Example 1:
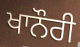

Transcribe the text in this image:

ਖਾਨੌਰੀ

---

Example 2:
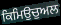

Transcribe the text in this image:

ਕਿਮਿਉਚੁਅਲ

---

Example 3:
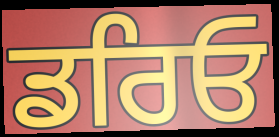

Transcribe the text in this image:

ਡਰਿਓ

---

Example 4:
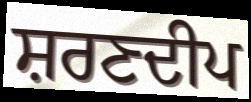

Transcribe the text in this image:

ਸ਼ਰਣਦੀਪ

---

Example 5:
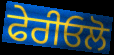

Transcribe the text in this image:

ਫੇਰੀਓਲੋ